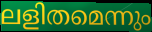
ലളിതമെന്നും